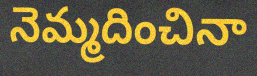
నెమ్మదించినా